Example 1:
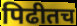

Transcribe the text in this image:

पिढीतच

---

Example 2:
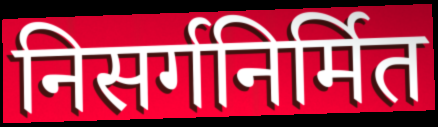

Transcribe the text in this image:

निसर्गनिर्मित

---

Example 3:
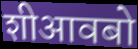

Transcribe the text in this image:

शीआवबो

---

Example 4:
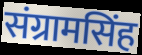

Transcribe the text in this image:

संग्रामसिंह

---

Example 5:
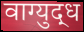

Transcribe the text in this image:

वाग्युद्ध